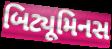
બિટ્યૂમિનસ